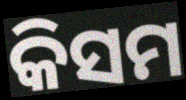
କିସମ